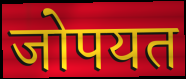
जोपयत